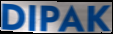
DIPAK